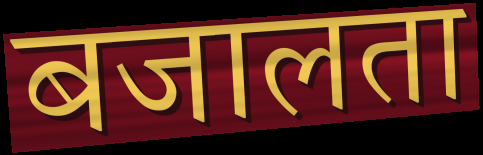
बजालता